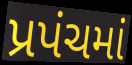
પ્રપંચમાં